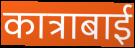
कात्राबाई